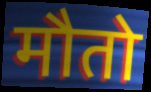
मौतो